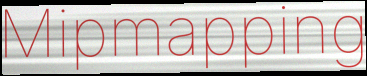
Mipmapping